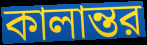
কালান্তর